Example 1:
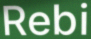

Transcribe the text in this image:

Rebi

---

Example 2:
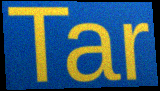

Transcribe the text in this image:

Tar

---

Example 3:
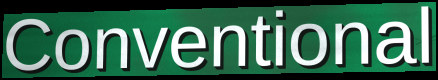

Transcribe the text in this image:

Conventional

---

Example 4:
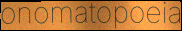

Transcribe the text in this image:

onomatopoeia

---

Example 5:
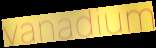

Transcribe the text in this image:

vanadium